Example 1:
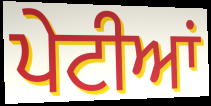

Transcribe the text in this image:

ਪੇਟੀਆਂ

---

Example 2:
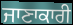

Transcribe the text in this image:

ਜਾਣਾਕਾਰੀ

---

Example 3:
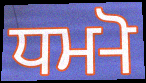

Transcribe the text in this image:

ਧਮ੍ਮੋ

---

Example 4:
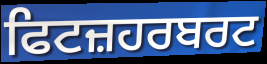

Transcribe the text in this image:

ਫਿਟਜ਼ਹਰਬਰਟ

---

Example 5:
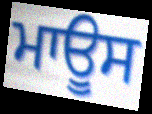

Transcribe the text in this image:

ਮਾਊਸ